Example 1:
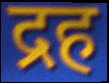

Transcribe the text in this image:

द्रह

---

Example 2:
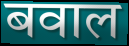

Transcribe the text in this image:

बवाल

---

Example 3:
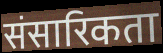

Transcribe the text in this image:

संसारिकता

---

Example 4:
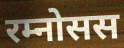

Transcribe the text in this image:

रम्नोसस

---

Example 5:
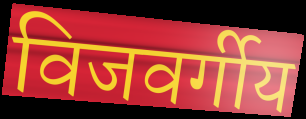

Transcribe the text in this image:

विजवर्गीय